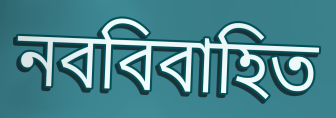
নববিবাহিত